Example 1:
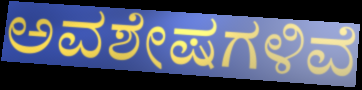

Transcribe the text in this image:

ಅವಶೇಷಗಳಿವೆ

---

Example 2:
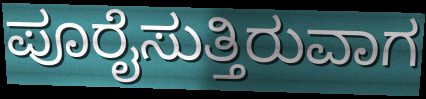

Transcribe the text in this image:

ಪೂರೈಸುತ್ತಿರುವಾಗ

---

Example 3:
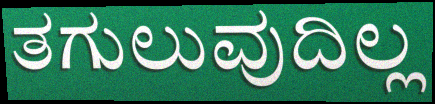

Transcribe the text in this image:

ತಗುಲುವುದಿಲ್ಲ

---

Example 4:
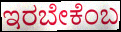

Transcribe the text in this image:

ಇರಬೇಕೆಂಬ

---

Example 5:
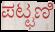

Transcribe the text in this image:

ಪಟ್ಟಣಿ